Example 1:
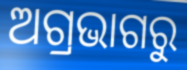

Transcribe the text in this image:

ଅଗ୍ରଭାଗରୁ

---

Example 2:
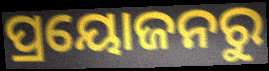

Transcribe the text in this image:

ପ୍ରୟୋଜନରୁ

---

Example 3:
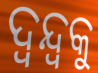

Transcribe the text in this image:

ଦ୍ୱନ୍ଦ୍ୱକୁ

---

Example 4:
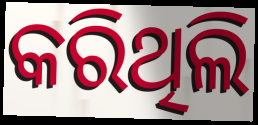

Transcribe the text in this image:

କରିଥିଲି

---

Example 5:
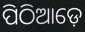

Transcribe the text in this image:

ପିଠିଆଡ଼େ